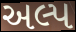
અલ્પ